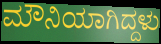
ಮೌನಿಯಾಗಿದ್ದಳು